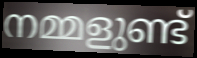
നമ്മളുണ്ട്